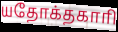
யதோக்தகாரி